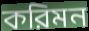
করিমন